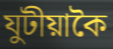
যুটীয়াকৈ